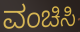
ವಂಚಿಸಿ